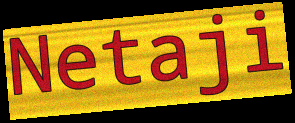
Netaji